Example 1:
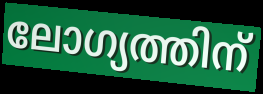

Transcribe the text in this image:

ലോഗ്യത്തിന്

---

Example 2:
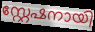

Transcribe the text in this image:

സ്റ്റേഷനായി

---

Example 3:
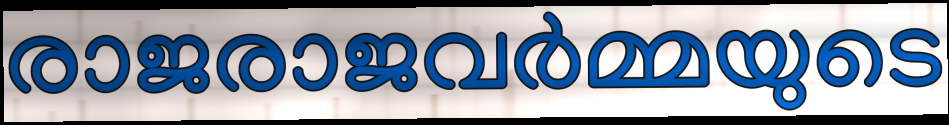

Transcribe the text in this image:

രാജരാജവർമ്മയുടെ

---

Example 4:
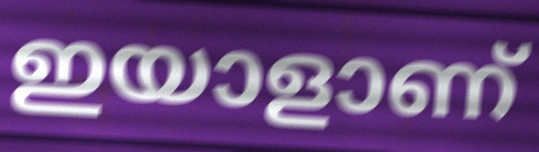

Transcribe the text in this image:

ഇയാളാണ്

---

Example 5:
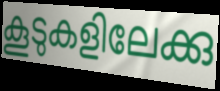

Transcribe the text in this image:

കൂടുകളിലേക്കു